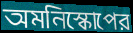
অমনিস্কোপের